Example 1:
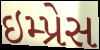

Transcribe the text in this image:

ઇમ્પ્રેસ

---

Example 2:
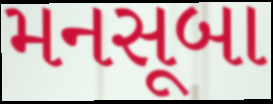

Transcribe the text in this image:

મનસૂબા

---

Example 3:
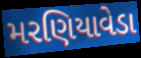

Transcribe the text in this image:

મરણિયાવેડા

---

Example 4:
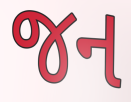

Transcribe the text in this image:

જન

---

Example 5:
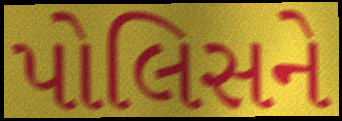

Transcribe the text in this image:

પોલિસને